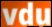
vdu